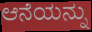
ಆನೆಯನ್ನು